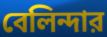
বেলিন্দার